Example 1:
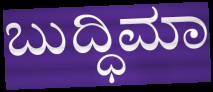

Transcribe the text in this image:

ಬುದ್ಧಿಮಾ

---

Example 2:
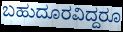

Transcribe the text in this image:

ಬಹುದೂರವಿದ್ದರೂ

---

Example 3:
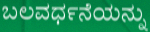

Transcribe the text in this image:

ಬಲವರ್ಧನೆಯನ್ನು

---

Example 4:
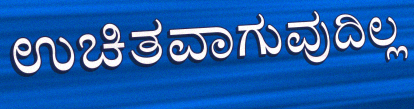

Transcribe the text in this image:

ಉಚಿತವಾಗುವುದಿಲ್ಲ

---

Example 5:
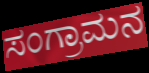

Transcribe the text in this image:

ಸಂಗ್ರಾಮನ